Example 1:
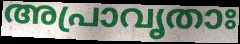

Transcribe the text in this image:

അപ്രാവൃതാഃ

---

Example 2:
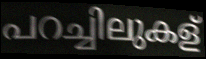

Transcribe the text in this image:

പറച്ചിലുകള്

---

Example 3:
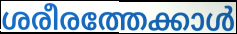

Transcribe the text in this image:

ശരീരത്തേക്കാൾ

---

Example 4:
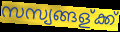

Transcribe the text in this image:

സസ്യങ്ങള്ക്ക്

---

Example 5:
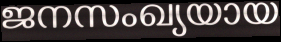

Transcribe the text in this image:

ജനസംഖ്യയായ